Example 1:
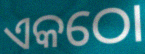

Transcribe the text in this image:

ଏକଠୋ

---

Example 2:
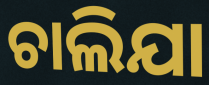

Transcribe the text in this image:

ଚାଲିଯା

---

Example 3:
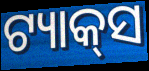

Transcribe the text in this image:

ଟ୍ୟାକ୍‌ସ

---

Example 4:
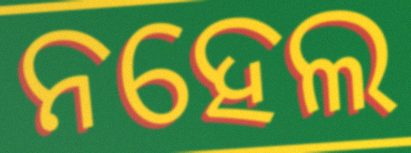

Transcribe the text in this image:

ନହେଲ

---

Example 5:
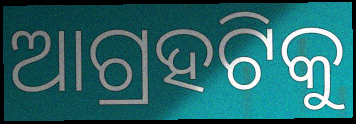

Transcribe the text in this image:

ଆଗ୍ରହଟିକୁ